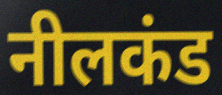
नीलकंड